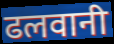
ढलवानी